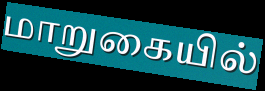
மாறுகையில்